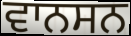
ਵਾਨਸਨ